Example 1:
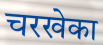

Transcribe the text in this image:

चरखेका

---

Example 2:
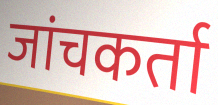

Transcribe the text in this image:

जांचकर्ता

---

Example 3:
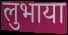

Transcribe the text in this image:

लुभाया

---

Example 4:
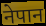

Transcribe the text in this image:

नेपान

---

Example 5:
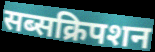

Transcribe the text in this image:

सब्सक्रिपशन